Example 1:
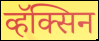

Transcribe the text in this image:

व्हॅक्सिन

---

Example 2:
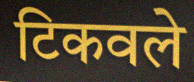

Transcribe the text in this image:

टिकवले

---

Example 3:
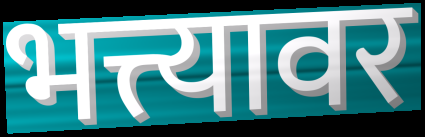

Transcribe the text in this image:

भत्त्यावर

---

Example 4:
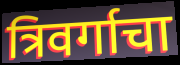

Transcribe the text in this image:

त्रिवर्गाचा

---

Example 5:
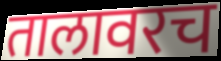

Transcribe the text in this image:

तालावरच